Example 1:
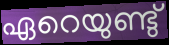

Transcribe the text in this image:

ഏറെയുണ്ടു്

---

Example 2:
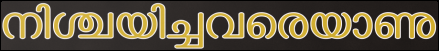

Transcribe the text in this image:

നിശ്ചയിച്ചവരെയാണു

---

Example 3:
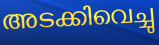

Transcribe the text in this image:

അടക്കിവെച്ചു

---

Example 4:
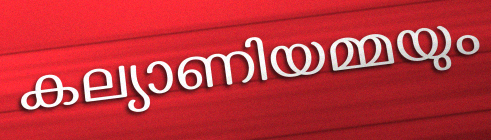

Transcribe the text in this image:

കല്യാണിയമ്മയും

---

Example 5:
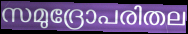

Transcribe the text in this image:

സമുദ്രോപരിതല